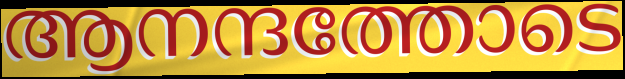
ആനന്ദത്തോടെ